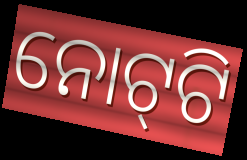
ନୋଟ୍‌ଟି